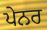
ਪੇਨਰ